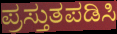
ಪ್ರಸ್ತುತಪಡಿಸಿ